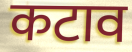
कटाव